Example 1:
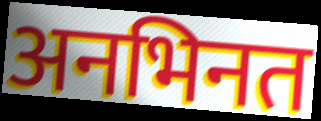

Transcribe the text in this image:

अनभिनत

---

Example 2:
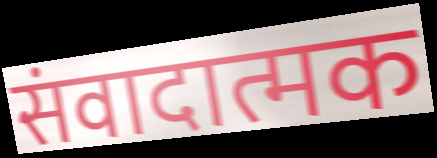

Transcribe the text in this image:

संवादात्मक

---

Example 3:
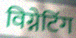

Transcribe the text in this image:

विग्नेटिंग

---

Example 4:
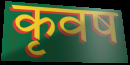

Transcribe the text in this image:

कृवष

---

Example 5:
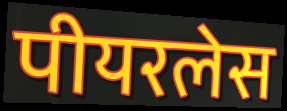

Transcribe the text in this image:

पीयरलेस